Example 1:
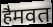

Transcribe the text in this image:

हैमवत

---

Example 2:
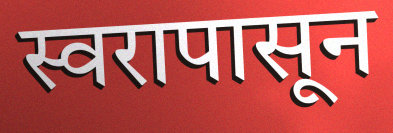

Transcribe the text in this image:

स्वरापासून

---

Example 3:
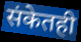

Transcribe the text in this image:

संकेतही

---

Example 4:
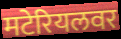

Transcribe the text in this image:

मटेरियलवर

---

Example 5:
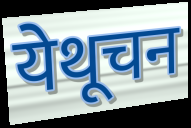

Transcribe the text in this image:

येथूचन